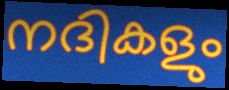
നദികളും